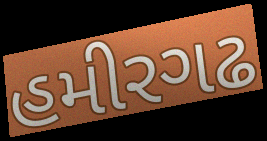
હમીરગઢ